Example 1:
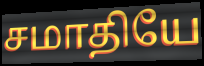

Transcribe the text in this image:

சமாதியே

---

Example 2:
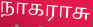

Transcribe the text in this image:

நாகராசு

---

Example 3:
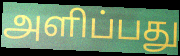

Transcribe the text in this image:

அளிப்பது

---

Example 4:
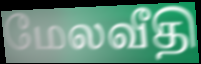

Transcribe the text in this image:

மேலவீதி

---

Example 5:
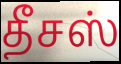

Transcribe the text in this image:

தீசஸ்